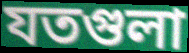
যতগুলা